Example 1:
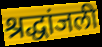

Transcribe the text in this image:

श्रद्धांजली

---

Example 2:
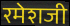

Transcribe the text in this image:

रमेशजी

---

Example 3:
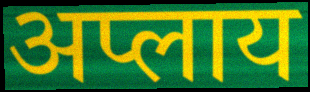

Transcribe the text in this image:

अप्लाय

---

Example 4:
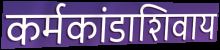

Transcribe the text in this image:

कर्मकांडाशिवाय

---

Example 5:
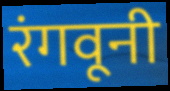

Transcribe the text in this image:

रंगवूनी